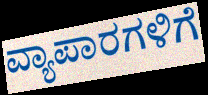
ವ್ಯಾಪಾರಗಳಿಗೆ